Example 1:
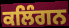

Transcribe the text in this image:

ਕਲਿੰਗਨ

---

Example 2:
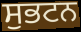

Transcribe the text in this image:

ਸੁਭਟਨ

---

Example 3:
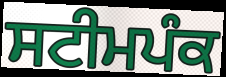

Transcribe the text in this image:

ਸਟੀਮਪੰਕ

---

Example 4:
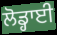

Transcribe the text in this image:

ਲੋਡ੍ਹਾਈ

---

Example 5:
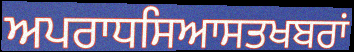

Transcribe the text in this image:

ਅਪਰਾਧਸਿਆਸਤਖਬਰਾਂ